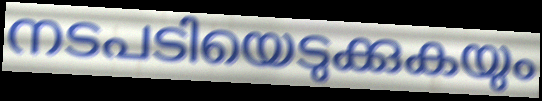
നടപടിയെടുക്കുകയും